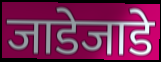
जाडेजाडे